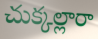
చుక్కల్లారా